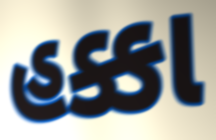
હક્કા